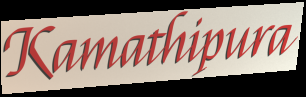
Kamathipura